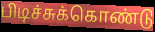
பிடிச்சுக்கொண்டு